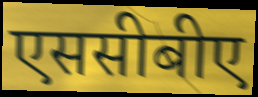
एससीबीए